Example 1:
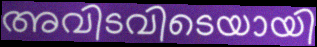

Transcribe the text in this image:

അവിടവിടെയായി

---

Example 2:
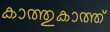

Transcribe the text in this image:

കാത്തുകാത്ത്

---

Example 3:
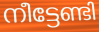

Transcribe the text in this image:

നീട്ടേണ്ടി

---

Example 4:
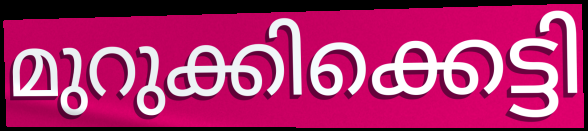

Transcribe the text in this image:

മുറുക്കിക്കെട്ടി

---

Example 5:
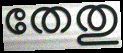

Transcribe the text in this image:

തേതു